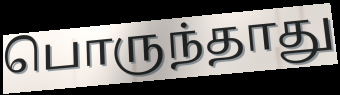
பொருந்தாது